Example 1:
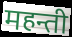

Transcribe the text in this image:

महन्ती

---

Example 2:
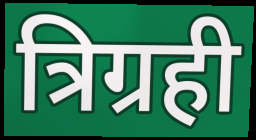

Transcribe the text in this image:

त्रिग्रही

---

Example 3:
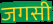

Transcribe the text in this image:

जगसी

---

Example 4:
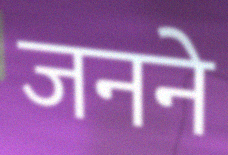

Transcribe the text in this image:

जनने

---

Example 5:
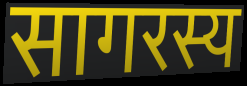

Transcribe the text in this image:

सागरस्य